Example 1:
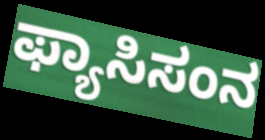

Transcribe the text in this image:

ಫ್ಯಾಸಿಸಂನ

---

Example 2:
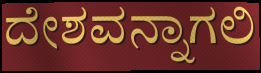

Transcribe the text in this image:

ದೇಶವನ್ನಾಗಲಿ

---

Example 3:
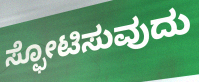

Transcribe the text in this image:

ಸ್ಫೋಟಿಸುವುದು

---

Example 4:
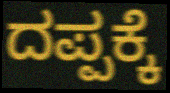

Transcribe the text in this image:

ದಪ್ಪಕ್ಕೆ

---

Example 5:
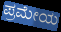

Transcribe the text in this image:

ಪ್ರಮೇಯ